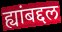
ह्यांबद्दल